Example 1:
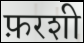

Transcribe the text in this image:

फ़रशी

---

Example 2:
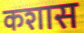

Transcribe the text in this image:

कशास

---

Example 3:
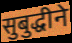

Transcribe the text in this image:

सुबुद्धीने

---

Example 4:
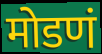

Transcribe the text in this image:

मोडणं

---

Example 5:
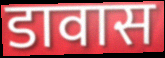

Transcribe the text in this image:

डावास